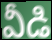
వీడి